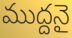
ముద్దనై